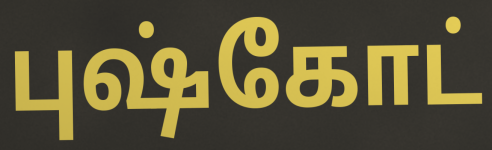
புஷ்கோட்